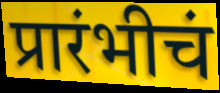
प्रारंभीचं